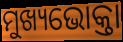
ମୁଖ୍ୟଭୋକ୍ତା